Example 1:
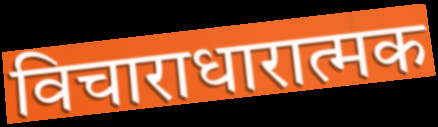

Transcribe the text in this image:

विचाराधारात्मक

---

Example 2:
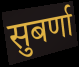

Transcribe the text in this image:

सुबर्णा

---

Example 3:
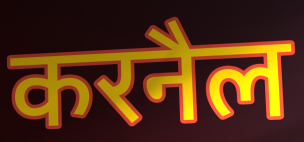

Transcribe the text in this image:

करनैल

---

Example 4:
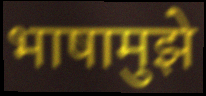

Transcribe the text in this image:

भाषामुझे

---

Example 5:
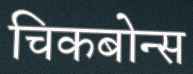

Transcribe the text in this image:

चिकबोन्स